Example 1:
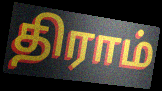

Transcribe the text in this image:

திராம்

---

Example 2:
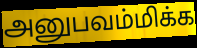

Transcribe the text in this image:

அனுபவம்மிக்க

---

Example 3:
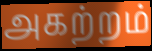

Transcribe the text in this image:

அகற்றம்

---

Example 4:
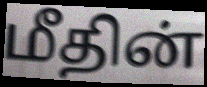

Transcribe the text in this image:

மீதின்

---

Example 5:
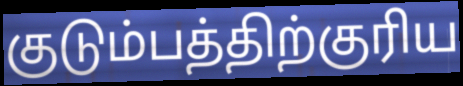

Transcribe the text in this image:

குடும்பத்திற்குரிய